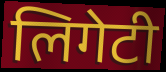
लिगेटी